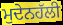
ਮੁਦੇਨਹੱਲੀ